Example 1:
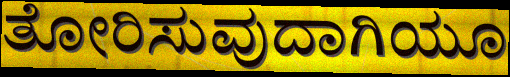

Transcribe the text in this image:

ತೋರಿಸುವುದಾಗಿಯೂ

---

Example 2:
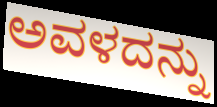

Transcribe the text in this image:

ಅವಳದನ್ನು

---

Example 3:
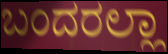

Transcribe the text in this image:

ಬಂದರಲ್ಲಾ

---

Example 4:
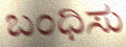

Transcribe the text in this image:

ಬಂಧಿಸು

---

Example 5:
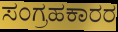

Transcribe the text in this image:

ಸಂಗ್ರಹಕಾರರ